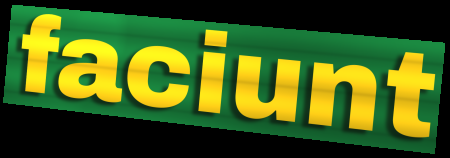
faciunt